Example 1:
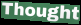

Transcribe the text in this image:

Thought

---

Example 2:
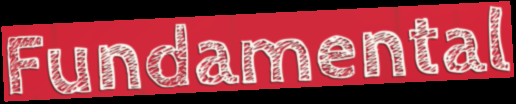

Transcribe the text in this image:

Fundamental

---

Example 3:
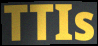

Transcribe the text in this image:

TTIs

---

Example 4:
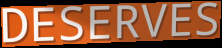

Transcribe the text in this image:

DESERVES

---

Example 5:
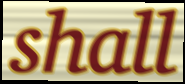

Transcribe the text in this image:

shall